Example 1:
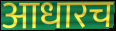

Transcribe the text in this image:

आधारच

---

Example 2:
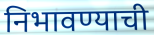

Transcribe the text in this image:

निभावण्याची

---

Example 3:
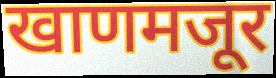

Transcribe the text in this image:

खाणमजूर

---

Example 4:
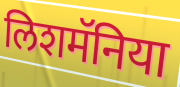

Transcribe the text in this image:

लिशमॅनिया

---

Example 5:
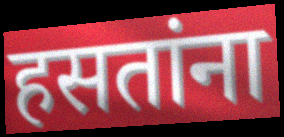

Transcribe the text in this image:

हसतांना